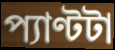
প্যাণ্টটা